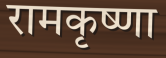
रामकृष्णा